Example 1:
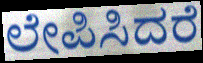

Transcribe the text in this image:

ಲೇಪಿಸಿದರೆ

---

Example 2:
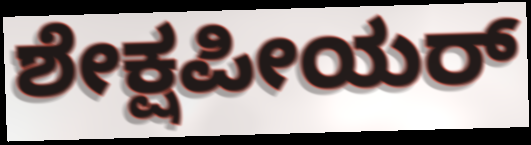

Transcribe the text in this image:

ಶೇಕ್ಷಪೀಯರ್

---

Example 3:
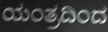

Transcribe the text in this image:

ಯಂತ್ರದಿಂದ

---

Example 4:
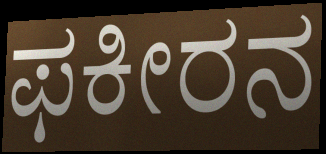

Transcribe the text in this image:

ಫಕೀರನ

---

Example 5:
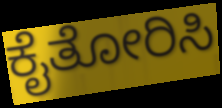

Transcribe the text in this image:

ಕೈತೋರಿಸಿ